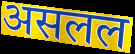
असलल